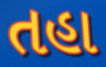
તહા